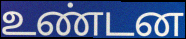
உண்டன